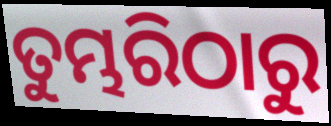
ତୁମ୍ଭରିଠାରୁ